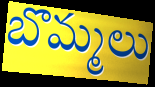
బొమ్మలు